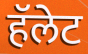
हॅलेट